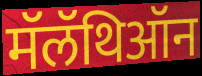
मॅलॅथिऑन